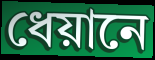
ধেয়ানে